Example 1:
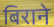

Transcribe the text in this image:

बिराने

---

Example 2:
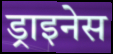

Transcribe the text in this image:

ड्राइनेस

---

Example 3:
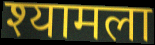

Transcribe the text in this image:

श्यामला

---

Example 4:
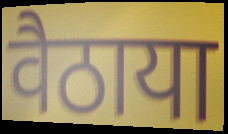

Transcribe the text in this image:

वैठाया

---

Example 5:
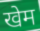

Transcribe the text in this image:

खेम